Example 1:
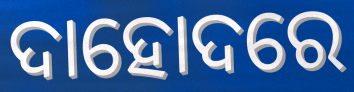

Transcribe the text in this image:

ଦାହୋଦରେ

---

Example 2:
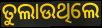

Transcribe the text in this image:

ତୁଲାଉଥିଲେ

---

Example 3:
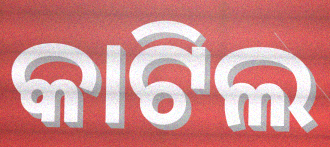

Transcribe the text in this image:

କାଟିଲ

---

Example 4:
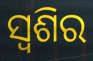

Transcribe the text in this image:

ସ୍ଵଶିର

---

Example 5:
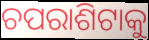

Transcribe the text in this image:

ଚପରାଶିଟାକୁ